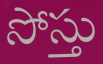
సోస్తు